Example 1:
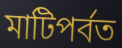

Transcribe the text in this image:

মাটিপৰ্বত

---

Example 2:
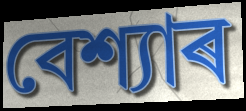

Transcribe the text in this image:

বেশ্যাৰ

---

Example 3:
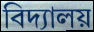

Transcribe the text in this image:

বিদ্যালয়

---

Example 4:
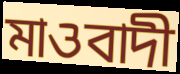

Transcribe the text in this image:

মাওবাদী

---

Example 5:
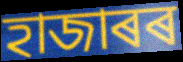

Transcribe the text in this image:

হাজাৰৰ